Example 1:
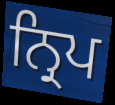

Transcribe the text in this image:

ਨ੍ਰਿਪ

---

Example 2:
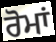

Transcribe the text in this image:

ਰੋਮਾਂ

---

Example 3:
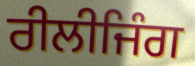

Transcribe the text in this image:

ਰੀਲੀਜਿੰਗ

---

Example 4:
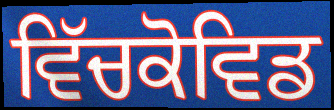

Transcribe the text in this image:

ਵਿੱਚਕੋਵਿਡ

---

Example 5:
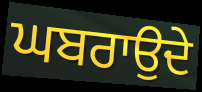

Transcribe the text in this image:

ਘਬਰਾਉਦੇ